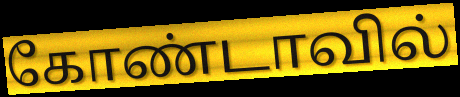
கோண்டாவில்